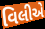
વિલીએ